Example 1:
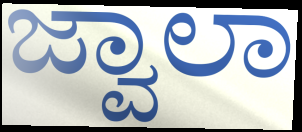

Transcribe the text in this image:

ಜ್ವಾಲಾ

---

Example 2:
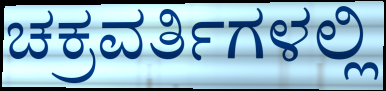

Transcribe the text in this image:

ಚಕ್ರವರ್ತಿಗಳಲ್ಲಿ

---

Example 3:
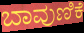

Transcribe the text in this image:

ಬಾವುಣಿಕೆ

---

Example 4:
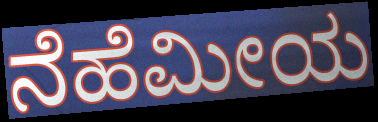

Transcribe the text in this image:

ನೆಹೆಮೀಯ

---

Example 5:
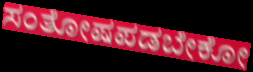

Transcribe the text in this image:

ಸಂತೋಷಪಡಬೇಕೋ